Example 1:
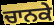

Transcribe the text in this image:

ਚਾਨਕੇ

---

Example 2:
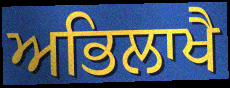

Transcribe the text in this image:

ਅਭਿਲਾਖੈ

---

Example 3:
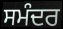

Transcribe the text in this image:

ਸਮੰਦਰ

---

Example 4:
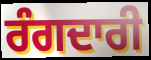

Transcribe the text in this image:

ਰੰਗਦਾਰੀ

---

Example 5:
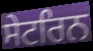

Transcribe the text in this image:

ਸੇਟਰਿਨ